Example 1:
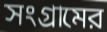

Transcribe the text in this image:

সংগ্রামের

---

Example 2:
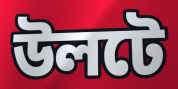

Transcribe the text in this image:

উলটে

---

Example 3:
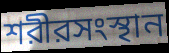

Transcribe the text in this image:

শরীরসংস্থান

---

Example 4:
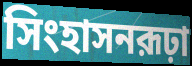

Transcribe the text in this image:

সিংহাসনরূঢ়া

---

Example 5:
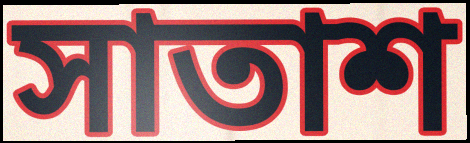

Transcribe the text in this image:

সাতাশ